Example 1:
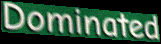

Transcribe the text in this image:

Dominated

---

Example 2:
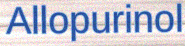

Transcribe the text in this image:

Allopurinol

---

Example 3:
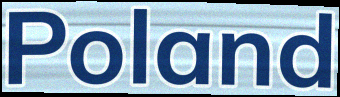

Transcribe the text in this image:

Poland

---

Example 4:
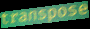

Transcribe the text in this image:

transpose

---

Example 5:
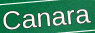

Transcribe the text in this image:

Canara